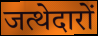
जत्थेदारों